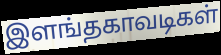
இளங்தகாவடிகள்